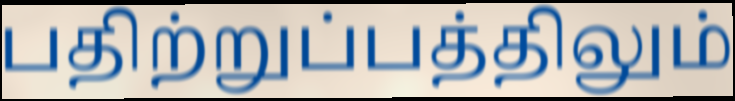
பதிற்றுப்பத்திலும்